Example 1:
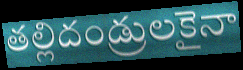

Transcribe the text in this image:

తల్లిదండ్రులకైనా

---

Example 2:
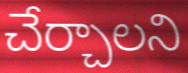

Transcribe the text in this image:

చేర్చాలని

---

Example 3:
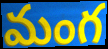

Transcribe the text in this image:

మంగ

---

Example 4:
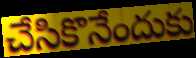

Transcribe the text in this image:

చేసికొనేందుకు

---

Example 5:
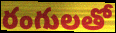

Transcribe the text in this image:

రంగులతో